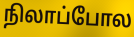
நிலாப்போல